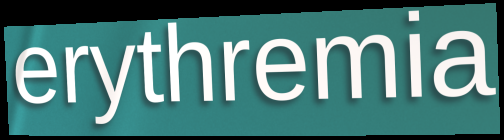
erythremia